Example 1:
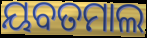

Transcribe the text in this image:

ୟବତମାଲ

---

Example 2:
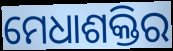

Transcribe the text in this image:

ମେଧାଶକ୍ତିର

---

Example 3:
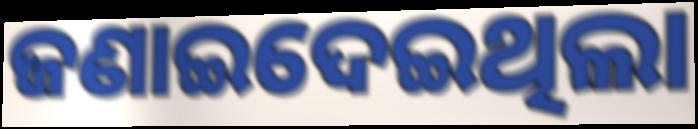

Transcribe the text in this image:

ଜଣାଇଦେଇଥିଲା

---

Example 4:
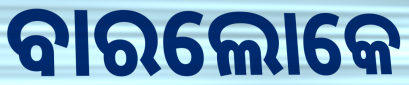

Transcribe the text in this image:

ବାରଲୋକେ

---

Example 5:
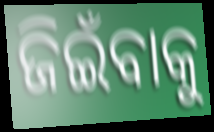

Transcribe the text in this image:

ଜିଇଁବାକୁ